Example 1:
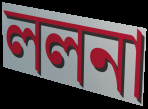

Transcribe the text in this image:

ললনা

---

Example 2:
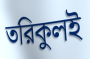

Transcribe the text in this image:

তরিকুলই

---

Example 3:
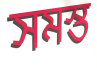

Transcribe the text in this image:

সমস্ত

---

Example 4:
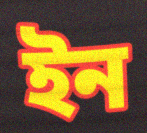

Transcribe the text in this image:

ইন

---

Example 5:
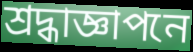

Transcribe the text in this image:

শ্রদ্ধাজ্ঞাপনে